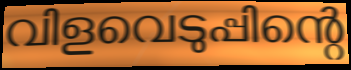
വിളവെടുപ്പിന്റെ